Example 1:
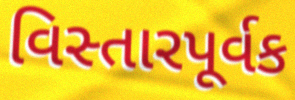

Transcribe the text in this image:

વિસ્તારપૂર્વક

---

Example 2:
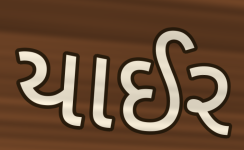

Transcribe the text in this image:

યાઈર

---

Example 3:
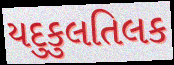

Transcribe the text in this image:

યદુકુલતિલક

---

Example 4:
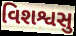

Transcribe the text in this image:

વિશશ્વસુ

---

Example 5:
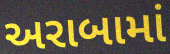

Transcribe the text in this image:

અરાબામાં